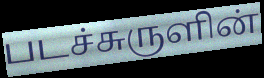
படச்சுருளின்